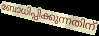
ബോധിപ്പിക്കുന്നതിന്